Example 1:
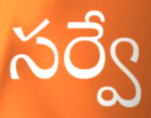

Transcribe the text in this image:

సర్వే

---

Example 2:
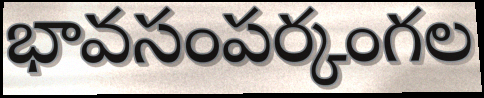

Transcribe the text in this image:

భావసంపర్కంగల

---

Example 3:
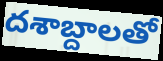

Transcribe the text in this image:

దశాబ్దాలతో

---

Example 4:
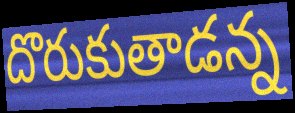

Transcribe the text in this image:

దొరుకుతాడన్న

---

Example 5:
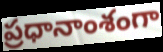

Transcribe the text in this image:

ప్రధానాంశంగా